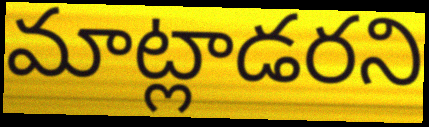
మాట్లాడరని